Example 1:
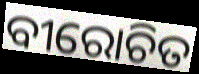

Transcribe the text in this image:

ବୀରୋଚିତ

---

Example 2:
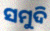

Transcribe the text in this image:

ସମୁଦି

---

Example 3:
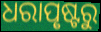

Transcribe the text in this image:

ଧରାପୃଷ୍ଟରୁ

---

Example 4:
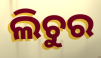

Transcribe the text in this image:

ଲିଚୁର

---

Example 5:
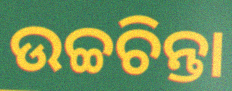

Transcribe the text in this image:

ଉଚ୍ଚଚିନ୍ତା